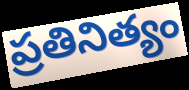
ప్రతినిత్యం